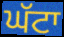
ਘੱਟਾ